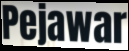
Pejawar